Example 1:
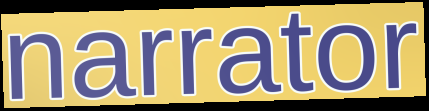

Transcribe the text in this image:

narrator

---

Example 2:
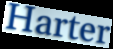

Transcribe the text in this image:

Harter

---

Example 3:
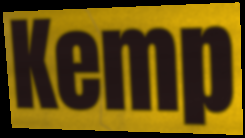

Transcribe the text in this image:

Kemp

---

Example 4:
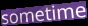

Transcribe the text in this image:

sometime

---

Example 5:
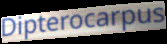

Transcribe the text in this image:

Dipterocarpus